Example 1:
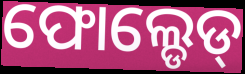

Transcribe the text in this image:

ଫୋଲ୍ଡେଡ୍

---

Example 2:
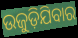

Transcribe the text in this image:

ଉଜୁଡ଼ିଯିବାର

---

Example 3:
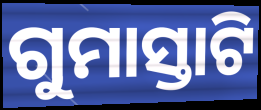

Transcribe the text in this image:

ଗୁମାସ୍ତାଟି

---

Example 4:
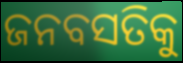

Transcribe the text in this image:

ଜନବସତିକୁ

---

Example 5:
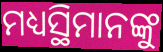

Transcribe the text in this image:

ମଧ୍ୟସ୍ଥିମାନଙ୍କୁ